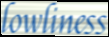
lowliness